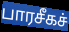
பாரசீகச்